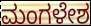
ಮಂಗಳೇಶ